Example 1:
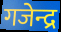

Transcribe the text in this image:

गजेन्‍द्र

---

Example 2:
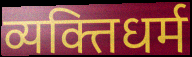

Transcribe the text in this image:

व्यक्तिधर्म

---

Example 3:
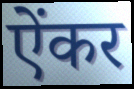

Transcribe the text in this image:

ऐंकर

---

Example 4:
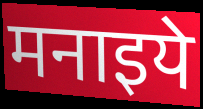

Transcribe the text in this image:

मनाइये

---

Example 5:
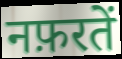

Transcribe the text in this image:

नफ़रतें